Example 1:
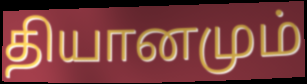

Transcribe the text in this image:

தியானமும்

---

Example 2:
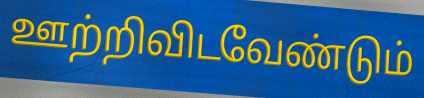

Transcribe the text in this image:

ஊற்றிவிடவேண்டும்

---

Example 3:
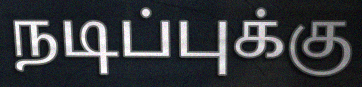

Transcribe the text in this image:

நடிப்புக்கு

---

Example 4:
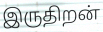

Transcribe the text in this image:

இருதிறன்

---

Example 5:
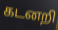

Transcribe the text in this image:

கடனறி